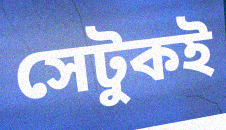
সেটুকই